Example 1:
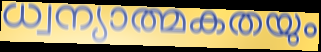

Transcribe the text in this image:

ധ്വന്യാത്മകതയും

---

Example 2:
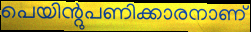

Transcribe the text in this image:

പെയിന്റുപണിക്കാരനാണ്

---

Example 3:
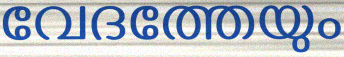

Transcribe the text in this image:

വേദത്തേയും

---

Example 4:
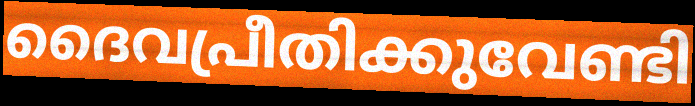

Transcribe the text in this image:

ദൈവപ്രീതിക്കുവേണ്ടി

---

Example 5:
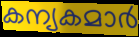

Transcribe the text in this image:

കന്യകമാർ